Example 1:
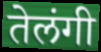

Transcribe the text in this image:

तेलंगी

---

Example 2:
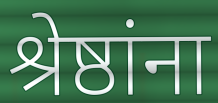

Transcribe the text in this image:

श्रेष्ठांना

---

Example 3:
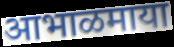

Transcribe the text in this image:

आभाळमाया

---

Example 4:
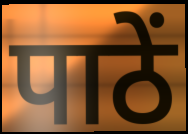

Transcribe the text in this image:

पाठें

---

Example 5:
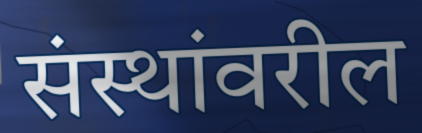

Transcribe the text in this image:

संस्थांवरील